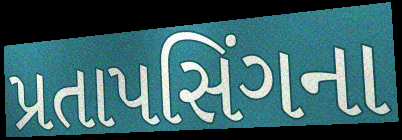
પ્રતાપસિંગના